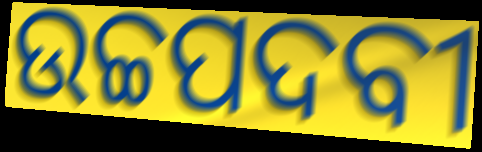
ଉଚ୍ଚପଦବୀ